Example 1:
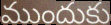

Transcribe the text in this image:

ముందుకు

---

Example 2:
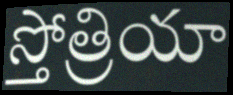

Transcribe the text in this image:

స్తోత్రియా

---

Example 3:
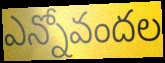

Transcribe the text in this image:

ఎన్నోవందల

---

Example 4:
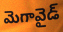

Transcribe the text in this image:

మెగావైడ్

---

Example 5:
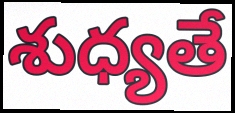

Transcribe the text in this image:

శుధ్యతే